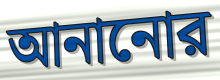
আনানোর